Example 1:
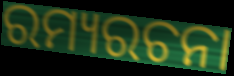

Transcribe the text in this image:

ରମ୍ୟରଚନା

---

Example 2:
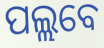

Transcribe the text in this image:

ପଲ୍ଲବେ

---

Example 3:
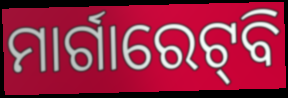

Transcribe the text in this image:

ମାର୍ଗାରେଟ୍‌ବି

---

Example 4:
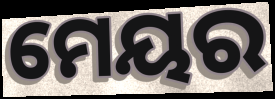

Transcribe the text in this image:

ମେୟର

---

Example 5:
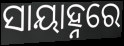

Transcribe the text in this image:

ସାୟାହ୍ନରେ